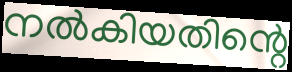
നൽകിയതിന്റെ